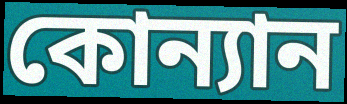
কোন্যান